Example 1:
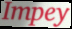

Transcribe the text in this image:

Impey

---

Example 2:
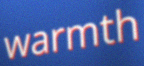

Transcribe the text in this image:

warmth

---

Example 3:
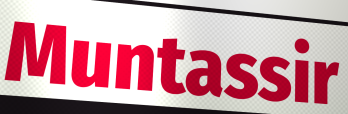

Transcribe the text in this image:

Muntassir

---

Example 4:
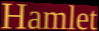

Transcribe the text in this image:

Hamlet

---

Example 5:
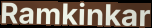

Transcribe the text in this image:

Ramkinkar